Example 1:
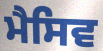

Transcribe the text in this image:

ਮੈਸਿਵ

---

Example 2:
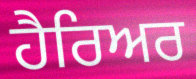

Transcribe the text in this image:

ਹੈਰਿਅਰ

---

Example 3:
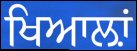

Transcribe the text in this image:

ਖਿਆਲ਼ਾਂ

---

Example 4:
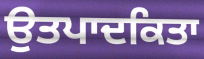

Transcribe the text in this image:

ਉਤਪਾਦਕਿਤਾ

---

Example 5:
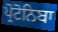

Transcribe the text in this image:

ਪ੍ਰੋਟੋਨਿਬਾ